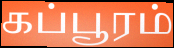
கப்பூரம்